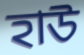
হাউ